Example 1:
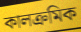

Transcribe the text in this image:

কালক্ৰমিক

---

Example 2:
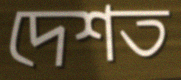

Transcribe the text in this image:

দেশত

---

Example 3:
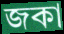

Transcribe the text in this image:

জকা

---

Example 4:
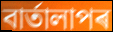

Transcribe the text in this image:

বাৰ্তালাপৰ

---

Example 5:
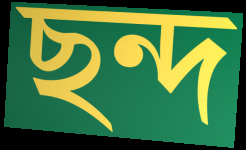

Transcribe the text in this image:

ছন্দ